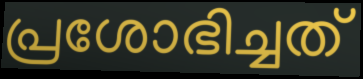
പ്രശോഭിച്ചത്